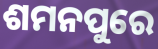
ଶମନପୁରେ